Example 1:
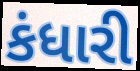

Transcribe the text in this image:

કંધારી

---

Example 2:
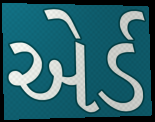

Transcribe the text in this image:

એર્ડ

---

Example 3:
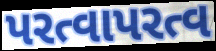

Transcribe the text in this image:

પરત્વાપરત્વ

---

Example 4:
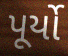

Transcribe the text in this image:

પૂર્યો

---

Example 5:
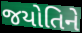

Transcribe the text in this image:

જયોતિને